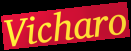
Vicharo